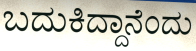
ಬದುಕಿದ್ದಾನೆಂದು